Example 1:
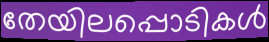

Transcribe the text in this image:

തേയിലപ്പൊടികൾ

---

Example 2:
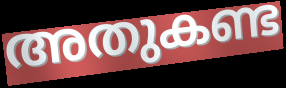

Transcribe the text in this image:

അതുകണ്ട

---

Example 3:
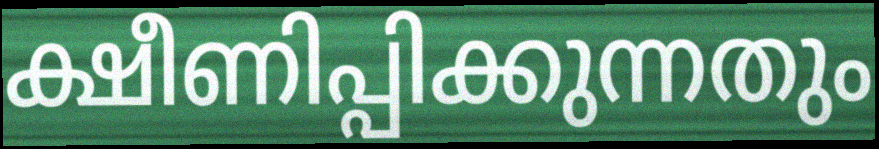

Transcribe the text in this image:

ക്ഷീണിപ്പിക്കുന്നതും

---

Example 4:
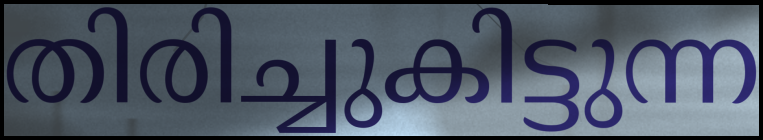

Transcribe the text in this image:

തിരിച്ചുകിട്ടുന്ന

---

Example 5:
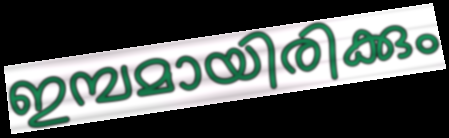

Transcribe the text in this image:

ഇമ്പമായിരിക്കും